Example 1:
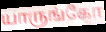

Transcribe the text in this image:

யாருங்கோ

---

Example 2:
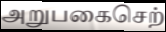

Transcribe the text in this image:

அறுபகைசெற்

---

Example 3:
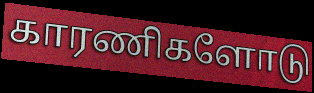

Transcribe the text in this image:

காரணிகளோடு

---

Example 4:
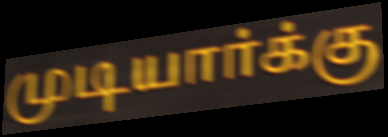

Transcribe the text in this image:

முடியார்க்கு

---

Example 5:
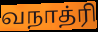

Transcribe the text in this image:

வநாத்ரி